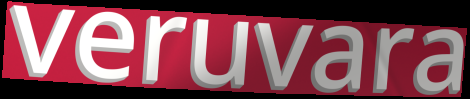
veruvara